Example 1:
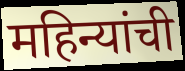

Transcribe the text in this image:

महिन्यांची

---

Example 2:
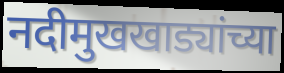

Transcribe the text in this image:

नदीमुखखाड्यांच्या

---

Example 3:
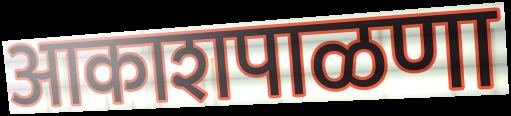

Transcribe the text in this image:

आकाशपाळणा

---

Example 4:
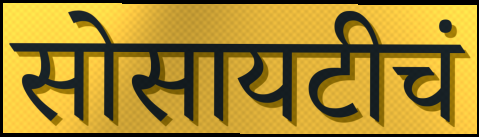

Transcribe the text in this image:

सोसायटीचं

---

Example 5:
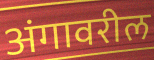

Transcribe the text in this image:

अंगावरील